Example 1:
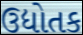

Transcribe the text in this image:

ઉદ્યોતક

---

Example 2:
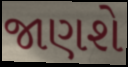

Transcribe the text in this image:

જાણશે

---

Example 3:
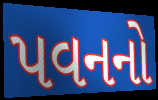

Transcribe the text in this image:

પવનનો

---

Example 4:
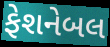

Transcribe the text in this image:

ફેશનેબલ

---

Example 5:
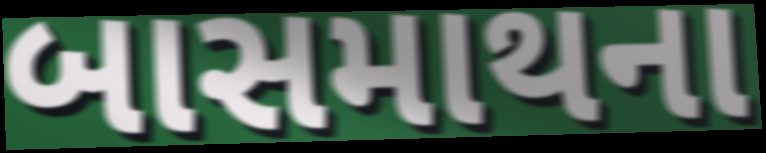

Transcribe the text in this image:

બાસમાથના